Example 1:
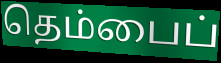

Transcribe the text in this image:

தெம்பைப்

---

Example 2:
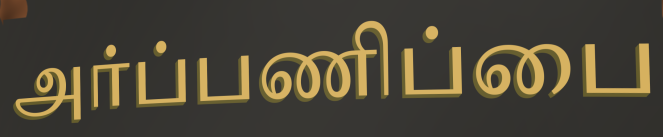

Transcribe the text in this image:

அர்ப்பணிப்பை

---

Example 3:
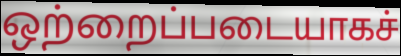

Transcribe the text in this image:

ஒற்றைப்படையாகச்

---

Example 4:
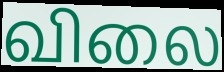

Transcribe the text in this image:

விலை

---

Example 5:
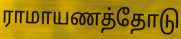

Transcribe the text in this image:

ராமாயணத்தோடு